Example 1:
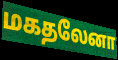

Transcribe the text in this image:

மகதலேனா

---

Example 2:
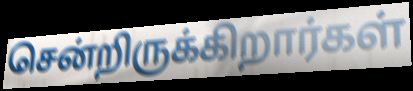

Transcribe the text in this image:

சென்றிருக்கிறார்கள்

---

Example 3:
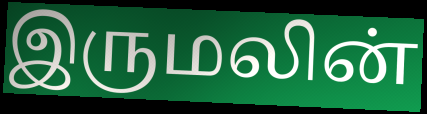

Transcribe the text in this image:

இருமலின்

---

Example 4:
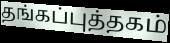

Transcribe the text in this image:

தங்கப்புத்தகம்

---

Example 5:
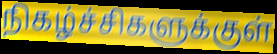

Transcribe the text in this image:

நிகழ்ச்சிகளுக்குள்